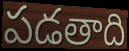
పడతాది